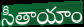
సీతాయాం